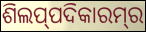
ଶିଲପ୍‍ପଦିକାରମ୍‍ର